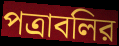
পত্রাবলির